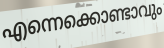
എന്നെക്കൊണ്ടാവും